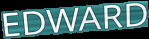
EDWARD